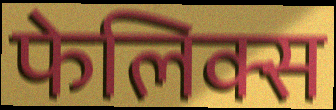
फेलिक्स